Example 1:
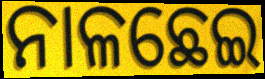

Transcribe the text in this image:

ନାଳଛେଇ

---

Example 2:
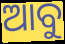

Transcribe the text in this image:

ଆବୁ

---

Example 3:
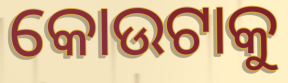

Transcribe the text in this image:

କୋଉଟାକୁ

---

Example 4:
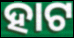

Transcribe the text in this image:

ହାଟ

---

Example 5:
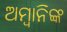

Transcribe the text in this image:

ଅମ୍ବାନିଙ୍କ